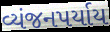
વ્યંજનપર્યાય